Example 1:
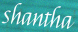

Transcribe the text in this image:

shantha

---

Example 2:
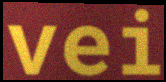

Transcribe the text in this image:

vei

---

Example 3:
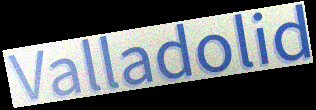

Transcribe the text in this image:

Valladolid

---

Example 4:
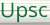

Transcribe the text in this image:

Upsc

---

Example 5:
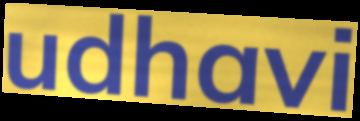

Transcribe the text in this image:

udhavi